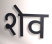
शेव